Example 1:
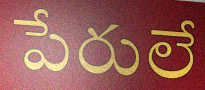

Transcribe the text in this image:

పేరులే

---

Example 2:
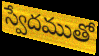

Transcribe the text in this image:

స్వేదముతో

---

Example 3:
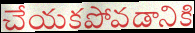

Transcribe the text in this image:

చేయకపోవడానికి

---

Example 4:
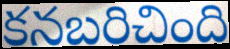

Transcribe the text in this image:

కనబరిచింది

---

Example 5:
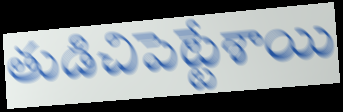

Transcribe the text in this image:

తుడిచిపెట్టేశాయి